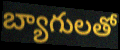
బ్యాగులతో